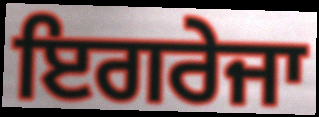
ਇਗਰੇਜਾ